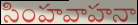
సింహవాహనా